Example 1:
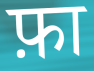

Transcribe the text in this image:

फ़ा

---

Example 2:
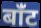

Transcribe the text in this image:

बांँट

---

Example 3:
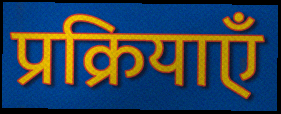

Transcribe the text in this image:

प्रक्रियाएँ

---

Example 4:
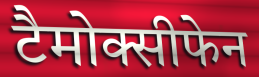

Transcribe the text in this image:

टैमोक्सीफेन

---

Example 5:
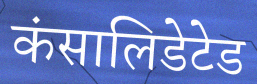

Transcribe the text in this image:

कंसालिडेटेड